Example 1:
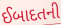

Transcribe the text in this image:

ઈબાદતની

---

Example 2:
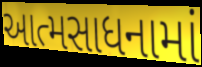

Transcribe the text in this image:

આત્મસાધનામાં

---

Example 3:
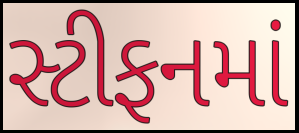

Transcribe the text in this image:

સ્ટીફનમાં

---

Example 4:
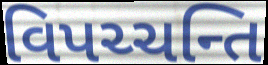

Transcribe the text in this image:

વિપચ્ચન્તિ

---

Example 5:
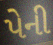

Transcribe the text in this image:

પેની